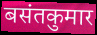
बसंतकुमार